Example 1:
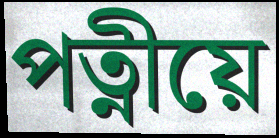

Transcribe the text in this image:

পত্নীয়ে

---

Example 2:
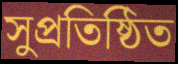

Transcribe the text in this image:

সুপ্ৰতিষ্ঠিত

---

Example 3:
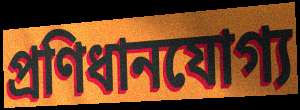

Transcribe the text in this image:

প্ৰণিধানযোগ্য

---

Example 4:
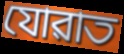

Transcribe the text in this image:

যোৱাত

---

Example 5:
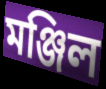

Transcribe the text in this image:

মঞ্জিল